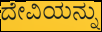
ದೇವಿಯನ್ನು